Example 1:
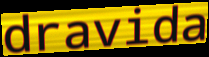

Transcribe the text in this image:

dravida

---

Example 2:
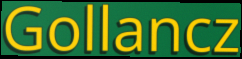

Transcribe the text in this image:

Gollancz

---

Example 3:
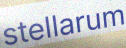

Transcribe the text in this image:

stellarum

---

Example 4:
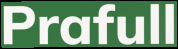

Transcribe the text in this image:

Prafull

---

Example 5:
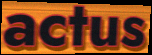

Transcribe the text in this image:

actus